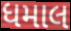
ધમાલ